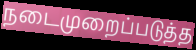
நடைமுறைப்படுத்த